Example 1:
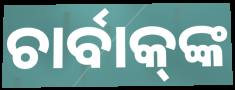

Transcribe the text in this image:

ଚାର୍ବାକ୍‌ଙ୍କ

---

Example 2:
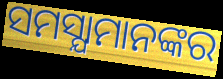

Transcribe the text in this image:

ସମସ୍ଯାମାନଙ୍କର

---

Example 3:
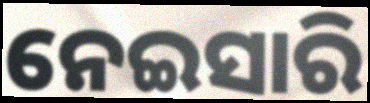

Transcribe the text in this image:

ନେଇସାରି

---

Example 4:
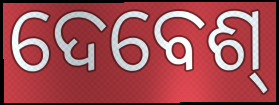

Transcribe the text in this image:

ଦେବେଶ୍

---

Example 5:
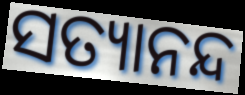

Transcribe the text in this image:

ସତ୍ୟାନନ୍ଦ